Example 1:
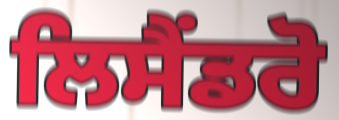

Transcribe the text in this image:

ਲਿਸੈਂਡਰੋ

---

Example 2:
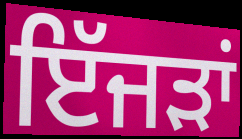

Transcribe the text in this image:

ਇੱਜੜਾਂ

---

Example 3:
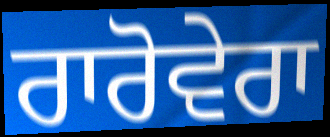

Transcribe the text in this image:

ਰਾਰੋਵੇਰਾ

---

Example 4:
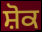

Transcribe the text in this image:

ਸ਼ੋਕ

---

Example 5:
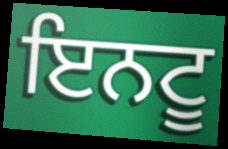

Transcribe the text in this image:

ਇਨਟੂ